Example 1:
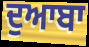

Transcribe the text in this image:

ਦੁਆਬਾ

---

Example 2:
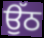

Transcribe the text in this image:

ਉੱਠ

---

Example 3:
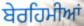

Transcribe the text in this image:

ਬੇਰਹਿਮੀਆਂ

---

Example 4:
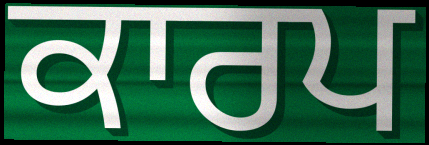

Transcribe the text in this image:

ਕਾਰਪ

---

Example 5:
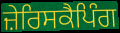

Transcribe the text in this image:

ਜ਼ੇਰਿਸਕੈਪਿੰਗ